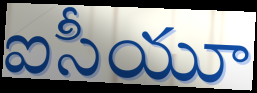
ఐసీయూ